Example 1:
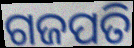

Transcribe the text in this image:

ଗଜପତି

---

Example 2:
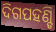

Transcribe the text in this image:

ଦିଗପହଣ୍ଡି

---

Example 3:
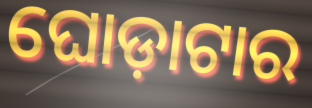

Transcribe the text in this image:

ଘୋଡ଼ାଟାର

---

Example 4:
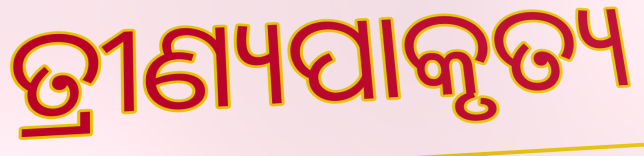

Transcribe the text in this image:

ତ୍ରୀଣ୍ୟପାକୃତ୍ୟ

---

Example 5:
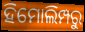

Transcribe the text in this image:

ହିମୋଲିମ୍ପରୁ